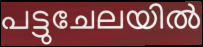
പട്ടുചേലയിൽ